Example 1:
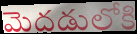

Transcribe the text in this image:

మెదడులోకి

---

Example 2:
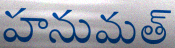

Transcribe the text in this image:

హనుమత్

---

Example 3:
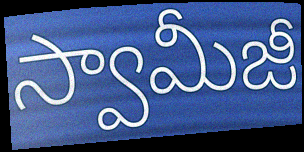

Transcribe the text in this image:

స్వామీజీ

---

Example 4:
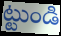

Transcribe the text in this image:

ట్టుండి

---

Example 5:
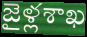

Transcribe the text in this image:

జైళ్లశాఖ